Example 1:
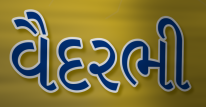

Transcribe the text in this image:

વૈદરભી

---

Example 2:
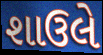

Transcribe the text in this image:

શાઉલે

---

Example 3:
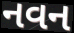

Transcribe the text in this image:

નવન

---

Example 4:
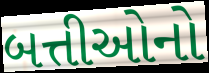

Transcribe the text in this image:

બત્તીઓનો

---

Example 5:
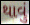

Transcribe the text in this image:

થાવું